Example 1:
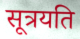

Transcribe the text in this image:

सूत्रयति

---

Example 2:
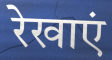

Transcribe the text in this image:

रेखाएं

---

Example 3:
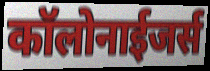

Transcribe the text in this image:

कॉलोनाईजर्स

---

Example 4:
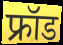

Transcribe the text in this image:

फ्रॉड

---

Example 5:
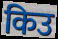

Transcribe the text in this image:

किउ